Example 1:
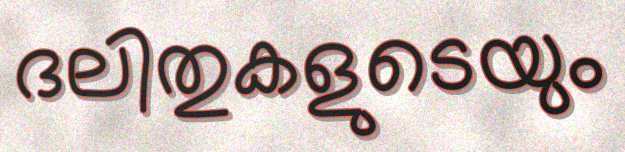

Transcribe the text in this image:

ദലിതുകളുടെയും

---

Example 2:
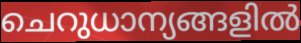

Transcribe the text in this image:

ചെറുധാന്യങ്ങളിൽ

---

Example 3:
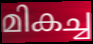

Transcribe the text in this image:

മികച്ച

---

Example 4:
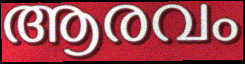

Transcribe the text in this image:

ആരവം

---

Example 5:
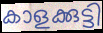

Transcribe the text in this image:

കാളക്കുട്ടി